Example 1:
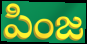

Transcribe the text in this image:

పింజ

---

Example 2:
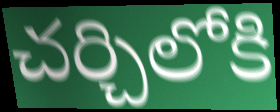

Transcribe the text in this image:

చర్చిలోకి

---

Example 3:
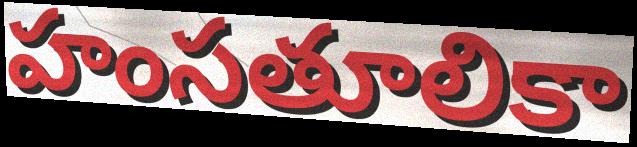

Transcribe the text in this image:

హంసతూలికా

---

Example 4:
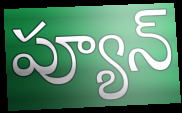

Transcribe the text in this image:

ప్యూన్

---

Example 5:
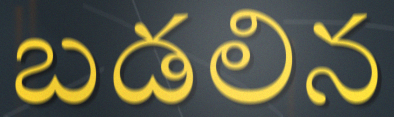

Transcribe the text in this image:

బడలిన